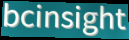
bcinsight